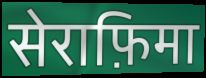
सेराफ़िमा